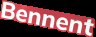
Bennent